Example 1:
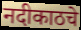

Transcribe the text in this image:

नदीकाठचे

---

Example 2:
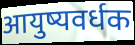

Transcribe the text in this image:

आयुष्यवर्धक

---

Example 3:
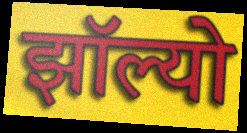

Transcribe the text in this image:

झॉल्यो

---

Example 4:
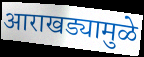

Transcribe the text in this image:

आराखड्यामुळे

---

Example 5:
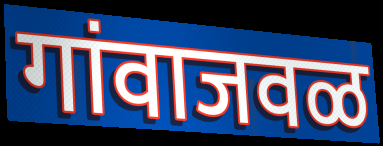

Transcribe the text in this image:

गांवाजवळ